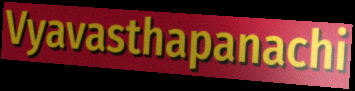
Vyavasthapanachi